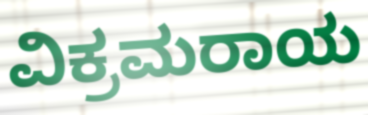
ವಿಕ್ರಮರಾಯ